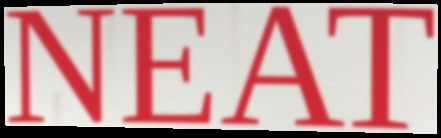
NEAT